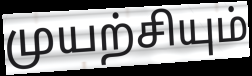
முயற்சியும்